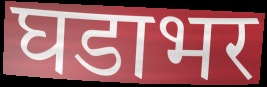
घडाभर